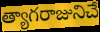
త్యాగరాజునిచే